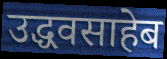
उद्धवसाहेब